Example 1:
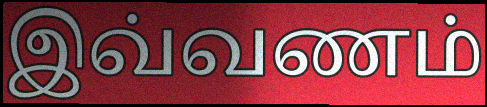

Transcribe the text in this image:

இவ்வணம்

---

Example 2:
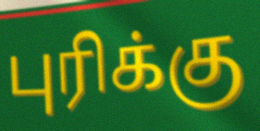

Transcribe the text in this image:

புரிக்கு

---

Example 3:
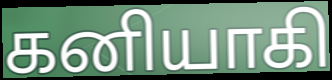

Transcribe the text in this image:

கனியாகி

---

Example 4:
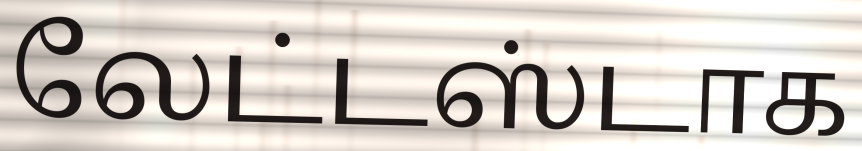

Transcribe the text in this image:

லேட்டஸ்டாக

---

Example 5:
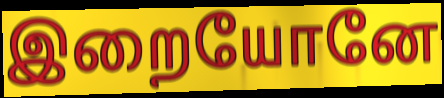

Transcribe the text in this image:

இறையோனே